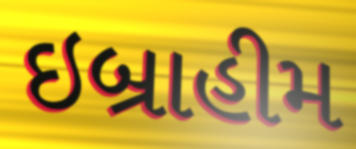
ઇબ્રાહીમ